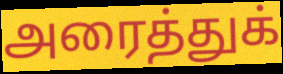
அரைத்துக்